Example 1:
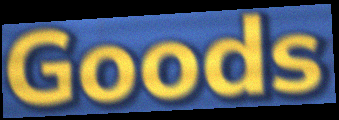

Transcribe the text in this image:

Goods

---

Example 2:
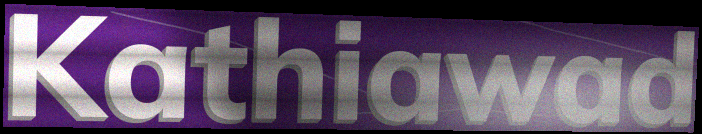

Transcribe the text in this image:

Kathiawad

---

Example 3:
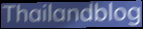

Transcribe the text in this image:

Thailandblog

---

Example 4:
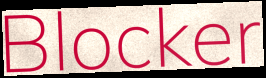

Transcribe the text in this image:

Blocker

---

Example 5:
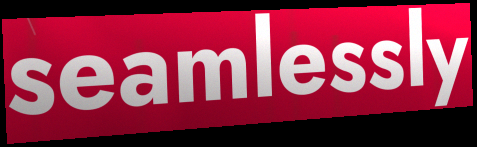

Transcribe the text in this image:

seamlessly